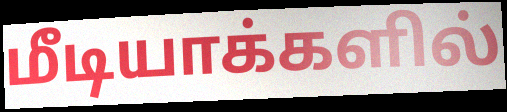
மீடியாக்களில்